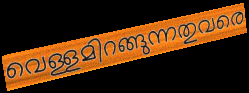
വെള്ളമിറങ്ങുന്നതുവരെ